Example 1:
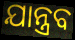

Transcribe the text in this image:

ଯାନ୍ତ୍ରବ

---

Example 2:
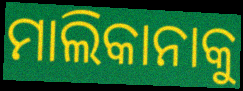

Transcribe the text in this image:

ମାଲିକାନାକୁ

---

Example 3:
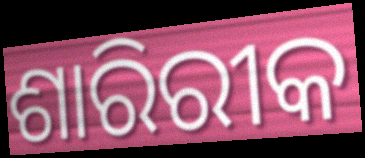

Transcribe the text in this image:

ଶାରିରୀକ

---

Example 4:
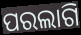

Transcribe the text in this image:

ପରଲାଗି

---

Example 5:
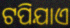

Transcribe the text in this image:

ଟପିଯାଏ